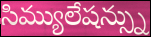
సిమ్యులేషన్స్ను